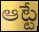
ఆట్టే